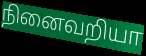
நினைவறியா